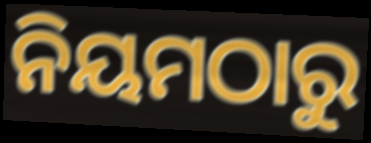
ନିୟମଠାରୁ